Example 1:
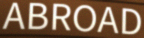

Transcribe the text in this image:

ABROAD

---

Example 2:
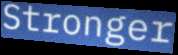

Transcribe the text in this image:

Stronger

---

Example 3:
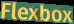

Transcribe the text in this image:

Flexbox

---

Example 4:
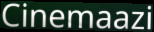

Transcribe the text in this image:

Cinemaazi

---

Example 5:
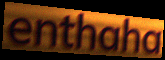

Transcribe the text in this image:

enthaha